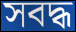
সবদ্ধ